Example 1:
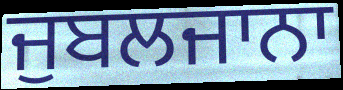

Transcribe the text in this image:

ਜੁਬਲਜਾਨਾ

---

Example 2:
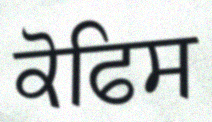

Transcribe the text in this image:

ਕੋਫਿਸ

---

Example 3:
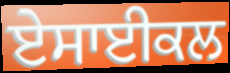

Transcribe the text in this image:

ਏਸਾਈਕਲ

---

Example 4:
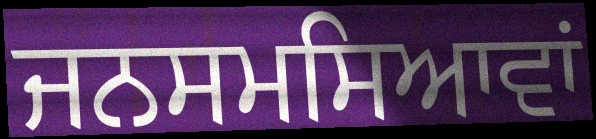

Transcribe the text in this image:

ਜਨਸਮਸਿਆਵਾਂ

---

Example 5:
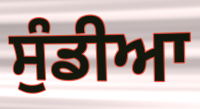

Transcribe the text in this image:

ਸੁੰਡੀਆ